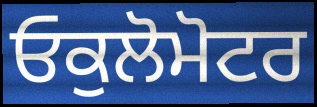
ਓਕੁਲੋਮੋਟਰ